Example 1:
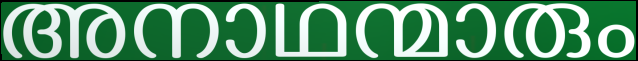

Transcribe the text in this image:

അനാഥന്മാരും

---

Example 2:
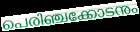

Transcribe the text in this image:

പെരിഞ്ചക്കോടനും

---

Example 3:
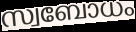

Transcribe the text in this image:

സ്വബോധം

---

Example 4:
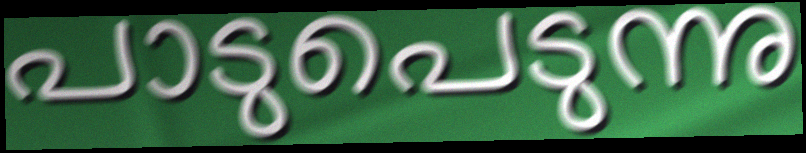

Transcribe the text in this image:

പാടുപെടുന്നു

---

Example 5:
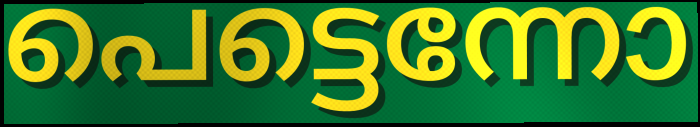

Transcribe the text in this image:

പെട്ടെന്നോ